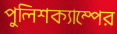
পুলিশক্যাম্পের